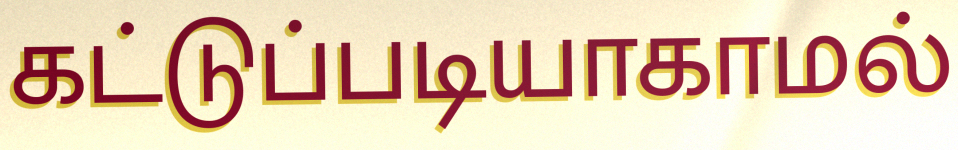
கட்டுப்படியாகாமல்